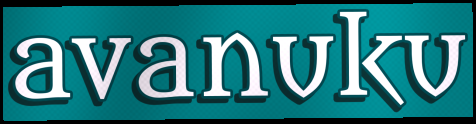
avanuku